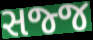
સજ્જ